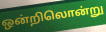
ஒன்றிலொன்று